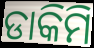
ଡାକିମି